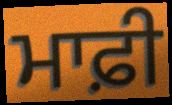
ਮਾਫ਼ੀ